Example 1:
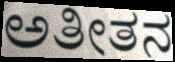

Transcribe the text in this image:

ಅತೀತನ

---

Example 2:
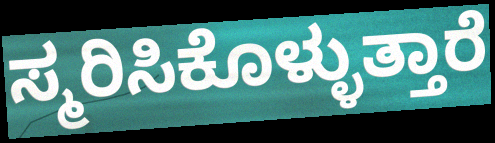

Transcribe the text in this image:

ಸ್ಮರಿಸಿಕೊಳ್ಳುತ್ತಾರೆ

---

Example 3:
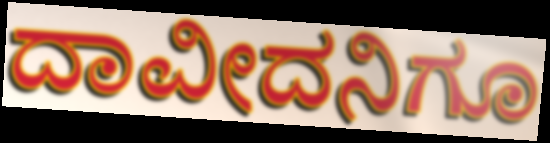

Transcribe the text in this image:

ದಾವೀದನಿಗೂ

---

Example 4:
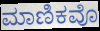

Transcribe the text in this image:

ಮಾಣಿಕವೊ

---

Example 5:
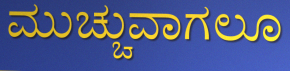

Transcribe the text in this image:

ಮುಚ್ಚುವಾಗಲೂ